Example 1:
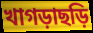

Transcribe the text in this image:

খাগড়াছড়ি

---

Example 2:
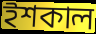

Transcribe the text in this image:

ইশকাল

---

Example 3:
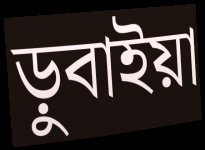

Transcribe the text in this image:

ড়ুবাইয়া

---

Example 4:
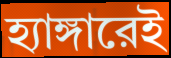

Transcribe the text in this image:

হ্যাঙ্গারেই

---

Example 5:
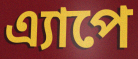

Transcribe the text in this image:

এ্যাপে